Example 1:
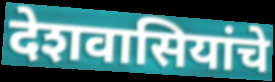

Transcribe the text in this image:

देशवासियांचे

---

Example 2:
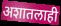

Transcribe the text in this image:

अशातलाही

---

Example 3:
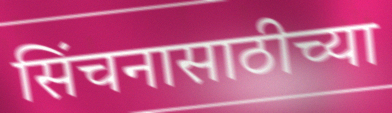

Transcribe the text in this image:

सिंचनासाठीच्या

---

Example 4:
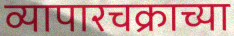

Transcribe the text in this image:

व्यापारचक्राच्या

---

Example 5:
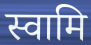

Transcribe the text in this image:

स्वामि